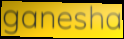
ganesha